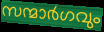
സന്മാർഗവും